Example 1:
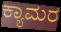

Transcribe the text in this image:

ಕ್ಯಾಮರ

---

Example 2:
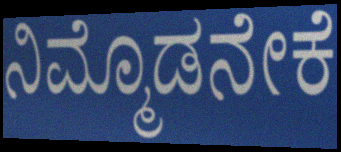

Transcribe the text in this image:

ನಿಮ್ಮೊಡನೇಕೆ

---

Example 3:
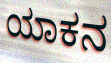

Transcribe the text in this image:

ಯಾಕನ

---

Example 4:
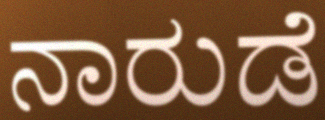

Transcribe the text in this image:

ನಾರುಡೆ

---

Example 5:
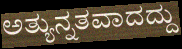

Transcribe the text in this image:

ಅತ್ಯುನ್ನತವಾದದ್ದು